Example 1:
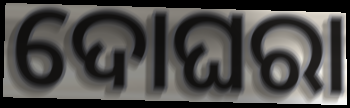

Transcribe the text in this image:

ଦୋଘରା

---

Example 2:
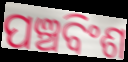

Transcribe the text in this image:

ପଞ୍ଚବିଂଶ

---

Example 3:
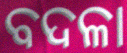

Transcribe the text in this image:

ବଦଳା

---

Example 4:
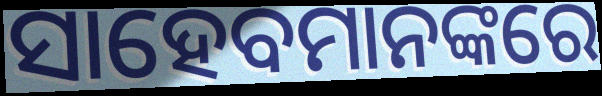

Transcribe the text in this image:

ସାହେବମାନଙ୍କରେ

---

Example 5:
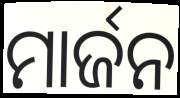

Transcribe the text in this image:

ମାର୍ଜନ